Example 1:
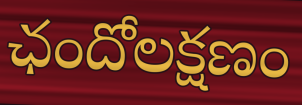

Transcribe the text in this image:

ఛందోలక్షణం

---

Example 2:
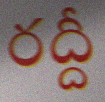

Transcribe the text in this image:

రద్దీ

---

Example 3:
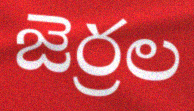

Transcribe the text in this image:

జెర్రల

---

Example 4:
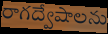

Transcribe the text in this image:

రాగద్వేషాలను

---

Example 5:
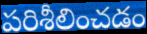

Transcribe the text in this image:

పరిశీలించడం